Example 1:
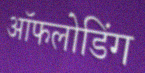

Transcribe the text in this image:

ऑफलोडिंग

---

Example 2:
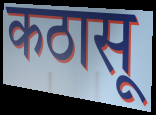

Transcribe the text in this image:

कठासू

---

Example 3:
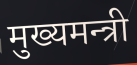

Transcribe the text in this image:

मुख्यमन्त्री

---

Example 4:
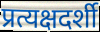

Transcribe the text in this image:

प्रत्यक्षदर्शी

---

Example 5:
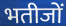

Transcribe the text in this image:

भतीजों